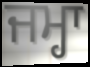
ਜਮ੍ਹਾ